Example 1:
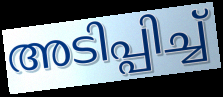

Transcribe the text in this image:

അടിപ്പിച്ച്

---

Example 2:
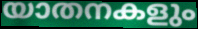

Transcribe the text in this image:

യാതനകളും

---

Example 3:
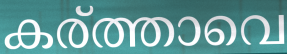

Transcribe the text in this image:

കര്ത്താവെ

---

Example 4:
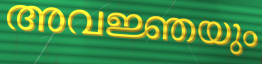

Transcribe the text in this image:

അവജ്ഞയും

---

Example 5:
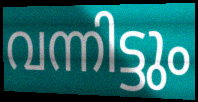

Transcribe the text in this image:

വന്നിട്ടും